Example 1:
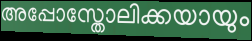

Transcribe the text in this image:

അപ്പോസ്തോലിക്കയായും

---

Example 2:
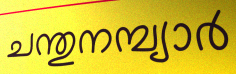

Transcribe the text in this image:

ചന്തുനമ്പ്യാർ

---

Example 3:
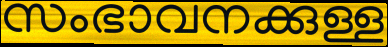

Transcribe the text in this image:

സംഭാവനക്കുള്ള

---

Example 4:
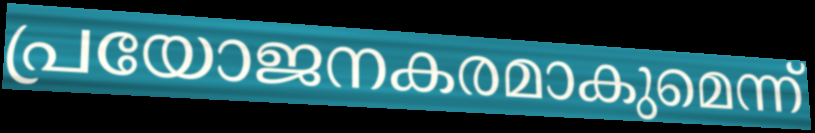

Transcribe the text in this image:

പ്രയോജനകരമാകുമെന്ന്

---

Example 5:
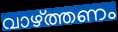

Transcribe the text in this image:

വാഴ്ത്തണം